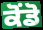
ਕੋਂਡੋ